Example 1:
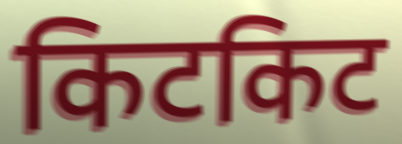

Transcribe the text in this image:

किटकिट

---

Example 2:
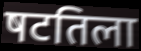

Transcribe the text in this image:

षटतिला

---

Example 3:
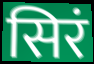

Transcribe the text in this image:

सिरं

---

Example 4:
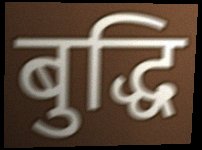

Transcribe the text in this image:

बुद्धि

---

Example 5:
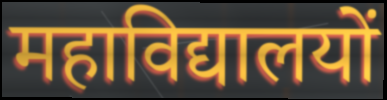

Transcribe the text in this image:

महाविद्यालयों